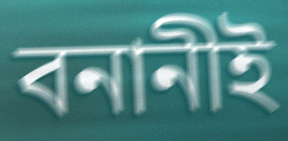
বনানীই